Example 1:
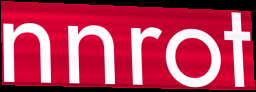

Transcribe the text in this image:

nnrot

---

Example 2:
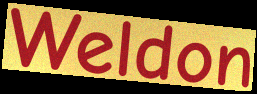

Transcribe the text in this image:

Weldon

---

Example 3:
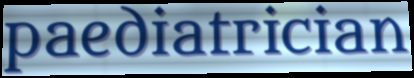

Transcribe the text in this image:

paediatrician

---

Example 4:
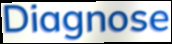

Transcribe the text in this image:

Diagnose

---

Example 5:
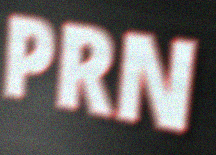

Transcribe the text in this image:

PRN